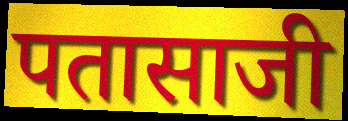
पतासाजी